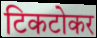
टिकटोकर